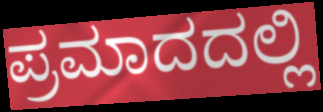
ಪ್ರಮಾದದಲ್ಲಿ